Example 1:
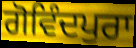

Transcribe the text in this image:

ਗੋਵਿੰਦਪੁਰਾ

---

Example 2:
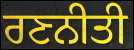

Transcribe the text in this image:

ਰਣਨੀਤੀ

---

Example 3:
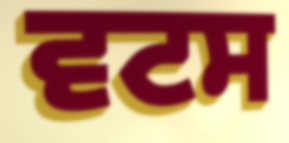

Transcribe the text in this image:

ਵਟਸ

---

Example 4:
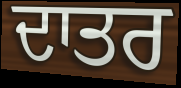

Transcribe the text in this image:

ਦਾਤਰ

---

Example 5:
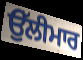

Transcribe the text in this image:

ਉੱਲੀਮਾਰ